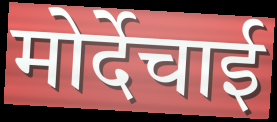
मोर्देचाई